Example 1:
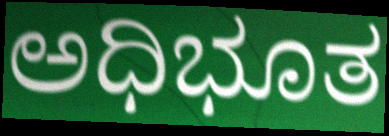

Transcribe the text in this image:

ಅಧಿಭೂತ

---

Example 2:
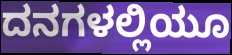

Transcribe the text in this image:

ದನಗಳಲ್ಲಿಯೂ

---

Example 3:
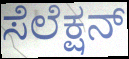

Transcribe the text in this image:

ಸೆಲೆಕ್ಷನ್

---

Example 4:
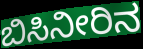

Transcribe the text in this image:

ಬಿಸಿನೀರಿನ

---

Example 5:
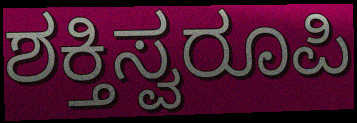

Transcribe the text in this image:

ಶಕ್ತಿಸ್ವರೂಪಿ